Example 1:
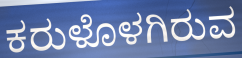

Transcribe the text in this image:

ಕರುಳೊಳಗಿರುವ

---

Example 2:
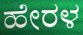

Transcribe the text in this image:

ಹೇರಳ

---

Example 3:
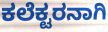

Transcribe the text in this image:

ಕಲೆಕ್ಟರನಾಗಿ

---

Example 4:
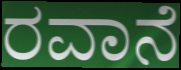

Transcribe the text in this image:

ರವಾನೆ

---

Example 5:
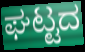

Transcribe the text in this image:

ಘಟ್ಟದ